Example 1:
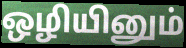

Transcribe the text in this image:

ஒழியினும்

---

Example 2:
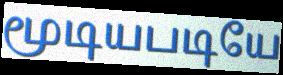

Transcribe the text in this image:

மூடியபடியே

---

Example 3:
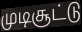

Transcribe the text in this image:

முடிசூட்டு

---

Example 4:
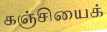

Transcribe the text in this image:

கஞ்சியைக்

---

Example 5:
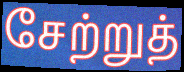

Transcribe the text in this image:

சேற்றுத்